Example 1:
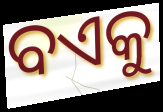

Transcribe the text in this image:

ବଏକୁ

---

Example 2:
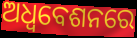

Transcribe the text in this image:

ଅଧ୍ଵବେଶନରେ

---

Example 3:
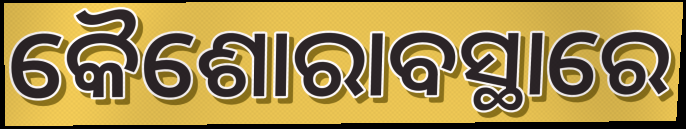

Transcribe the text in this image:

କୈଶୋରାବସ୍ଥାରେ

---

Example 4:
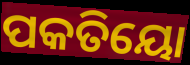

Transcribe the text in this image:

ପକତିୟୋ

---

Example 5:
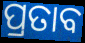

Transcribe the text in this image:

ପ୍ରତାବ